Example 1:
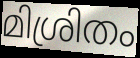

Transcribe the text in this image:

മിശ്രിതം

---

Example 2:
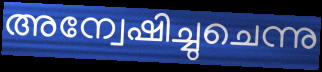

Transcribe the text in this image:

അന്വേഷിച്ചുചെന്നു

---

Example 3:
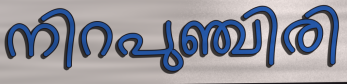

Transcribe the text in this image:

നിറപുഞ്ചിരി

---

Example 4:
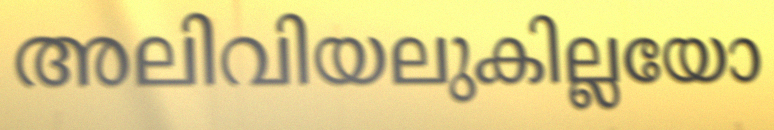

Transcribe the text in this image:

അലിവിയലുകില്ലയോ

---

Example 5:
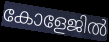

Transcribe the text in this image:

കോളേജിൽ